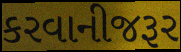
કરવાનીજરૂર